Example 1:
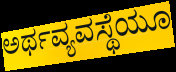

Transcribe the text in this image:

ಅರ್ಥವ್ಯವಸ್ಥೆಯೂ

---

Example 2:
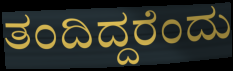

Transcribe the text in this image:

ತಂದಿದ್ದರೆಂದು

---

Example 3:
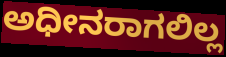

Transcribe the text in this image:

ಅಧೀನರಾಗಲಿಲ್ಲ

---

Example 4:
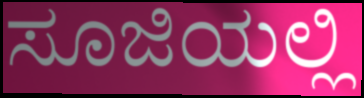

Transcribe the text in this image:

ಸೂಜಿಯಲ್ಲಿ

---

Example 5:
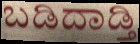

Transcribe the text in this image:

ಬಡಿದಾಡ್ತಿ